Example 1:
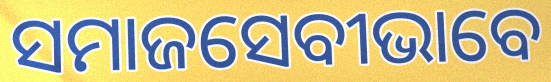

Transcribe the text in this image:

ସମାଜସେବୀଭାବେ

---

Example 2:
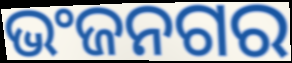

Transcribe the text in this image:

ଭଂଜନଗର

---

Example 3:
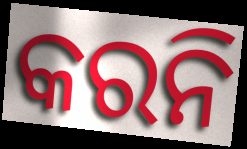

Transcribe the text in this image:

କରନି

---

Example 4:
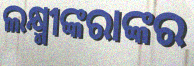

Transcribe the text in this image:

ଲକ୍ଷ୍ମୀଙ୍କରାଙ୍କର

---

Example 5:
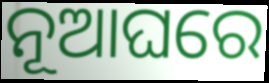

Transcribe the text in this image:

ନୂଆଘରେ